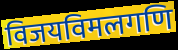
विजयविमलगणि